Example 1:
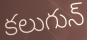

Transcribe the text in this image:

కలుగున్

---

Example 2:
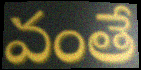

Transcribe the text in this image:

వంతే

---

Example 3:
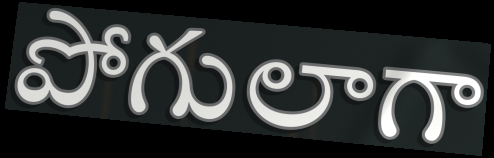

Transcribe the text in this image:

పోగులాగా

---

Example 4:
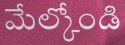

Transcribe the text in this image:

మేల్కోండి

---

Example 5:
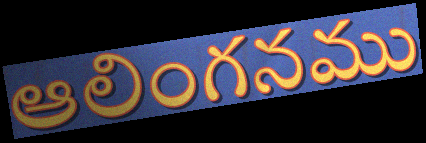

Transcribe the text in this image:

ఆలింగనము